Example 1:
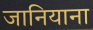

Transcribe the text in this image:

जानियाना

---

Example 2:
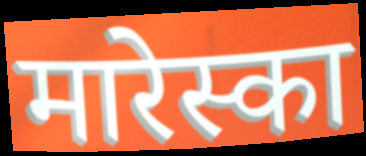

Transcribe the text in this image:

मारेस्का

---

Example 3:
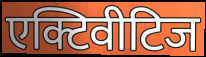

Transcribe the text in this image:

एक्टिवीटिज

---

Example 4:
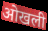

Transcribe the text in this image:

ओखली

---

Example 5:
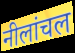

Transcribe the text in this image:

नीलांचल